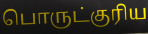
பொருட்குரிய